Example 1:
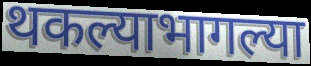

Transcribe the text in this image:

थकल्याभागल्या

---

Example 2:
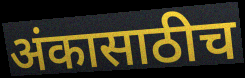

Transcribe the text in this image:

अंकासाठीच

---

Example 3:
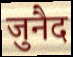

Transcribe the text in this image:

जुनैद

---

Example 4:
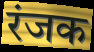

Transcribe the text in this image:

रंजक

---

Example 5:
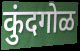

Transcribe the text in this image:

कुंदगोळ